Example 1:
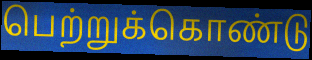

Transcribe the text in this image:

பெற்றுக்கொண்டு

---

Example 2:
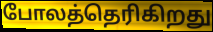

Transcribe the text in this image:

போலத்தெரிகிறது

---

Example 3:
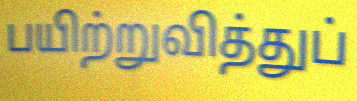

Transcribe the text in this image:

பயிற்றுவித்துப்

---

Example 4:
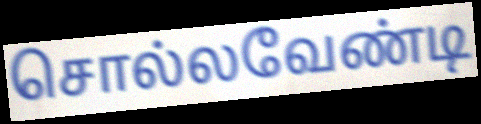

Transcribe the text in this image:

சொல்லவேண்டி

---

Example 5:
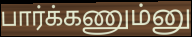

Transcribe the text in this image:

பார்க்கணும்னு